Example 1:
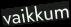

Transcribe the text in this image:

vaikkum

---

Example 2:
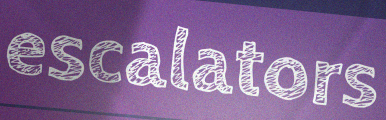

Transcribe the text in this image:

escalators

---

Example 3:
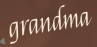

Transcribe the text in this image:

grandma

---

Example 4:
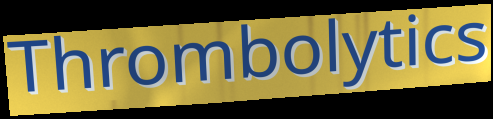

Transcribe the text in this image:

Thrombolytics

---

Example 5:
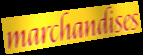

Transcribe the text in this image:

marchandises